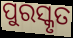
ପୁରସ୍କୃତ